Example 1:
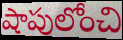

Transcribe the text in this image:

షాపులోంచి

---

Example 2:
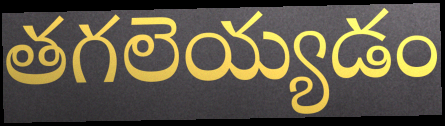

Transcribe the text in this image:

తగలెయ్యడం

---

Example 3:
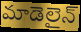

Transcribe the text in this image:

మాడెలైన్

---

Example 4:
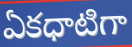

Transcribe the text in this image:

ఏకధాటిగా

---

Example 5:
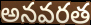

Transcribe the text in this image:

అనవరత